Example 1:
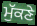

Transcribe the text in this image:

ਮੁੱਕਣੇ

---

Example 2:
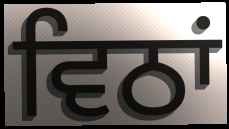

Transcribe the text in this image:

ਵਿਠਾਂ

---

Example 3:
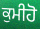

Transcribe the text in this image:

ਕੁਮੀਹੋ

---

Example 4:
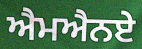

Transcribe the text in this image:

ਐਮਐਨਏ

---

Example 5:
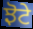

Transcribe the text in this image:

ਝੋਟੇ